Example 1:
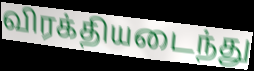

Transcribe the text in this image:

விரக்தியடைந்து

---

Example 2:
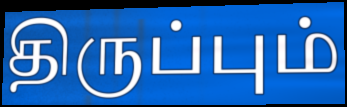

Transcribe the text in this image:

திருப்பும்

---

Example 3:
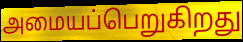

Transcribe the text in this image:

அமையப்பெறுகிறது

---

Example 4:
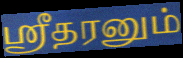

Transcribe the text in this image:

ஸ்ரீதரனும்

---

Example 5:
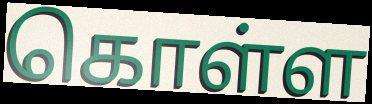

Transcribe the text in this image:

கொள்ள